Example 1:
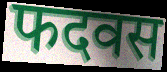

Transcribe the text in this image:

फदवस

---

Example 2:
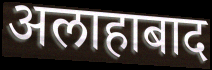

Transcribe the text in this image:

अलाहाबाद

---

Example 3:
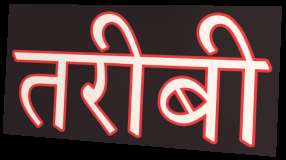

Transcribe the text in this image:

तरीबी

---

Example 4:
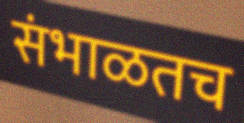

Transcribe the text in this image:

संभाळतच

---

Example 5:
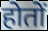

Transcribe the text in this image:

होतों